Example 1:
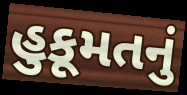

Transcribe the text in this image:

હુકૂમતનું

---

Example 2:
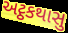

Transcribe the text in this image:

અટ્ઠકથાસુ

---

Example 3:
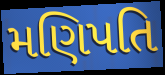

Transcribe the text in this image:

મણિપતિ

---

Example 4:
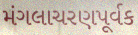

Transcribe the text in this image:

મંગલાચરણપૂર્વક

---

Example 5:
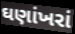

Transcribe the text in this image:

ઘણાંખરાં